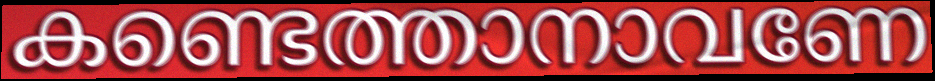
കണ്ടെത്താനാവണേ